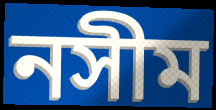
নসীম